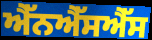
ਐੱਨਐੱਸਐੱਸ